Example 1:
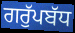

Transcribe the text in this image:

ਗਰੁੱਪਬੱਧ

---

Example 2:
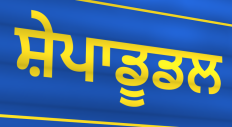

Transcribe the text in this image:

ਸ਼ੇਪਾਡੂਡਲ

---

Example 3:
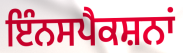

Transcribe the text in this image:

ਇੰਨਸਪੈਕਸ਼ਨਾਂ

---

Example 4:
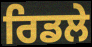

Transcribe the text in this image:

ਰਿਡਲੇ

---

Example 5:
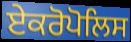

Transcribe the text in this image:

ਏਕਰੋਪੋਲਿਸ